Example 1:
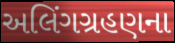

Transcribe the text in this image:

અલિંગગ્રહણના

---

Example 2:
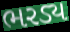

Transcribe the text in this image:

ભરડ્ય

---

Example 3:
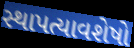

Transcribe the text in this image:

સ્થાપત્યાવશેષો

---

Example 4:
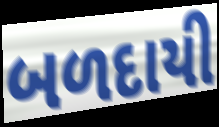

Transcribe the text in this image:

બળદાયી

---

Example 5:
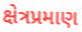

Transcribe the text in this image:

ક્ષેત્રપ્રમાણ